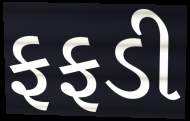
ફફડી